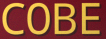
COBE